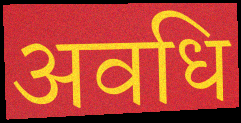
अवधि